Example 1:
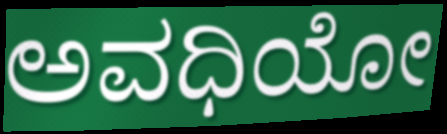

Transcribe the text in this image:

ಅವಧಿಯೋ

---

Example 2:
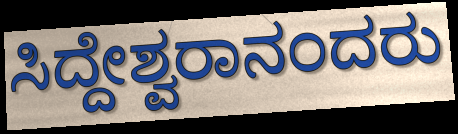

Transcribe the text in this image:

ಸಿದ್ದೇಶ್ವರಾನಂದರು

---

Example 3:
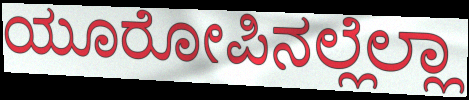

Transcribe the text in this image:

ಯೂರೋಪಿನಲ್ಲೆಲ್ಲಾ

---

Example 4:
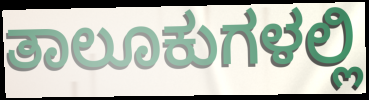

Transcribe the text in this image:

ತಾಲೂಕುಗಳಲ್ಲಿ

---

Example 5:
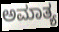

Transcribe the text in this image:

ಅಮಾತ್ಯ